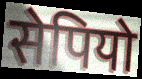
सेपियो